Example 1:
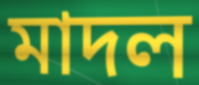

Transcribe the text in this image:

মাদল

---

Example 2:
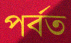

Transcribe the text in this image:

পৰ্বত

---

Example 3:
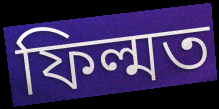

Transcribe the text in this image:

ফিল্মত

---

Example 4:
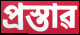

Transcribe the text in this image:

প্ৰস্তাৱ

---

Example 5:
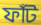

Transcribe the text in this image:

ফাঁট